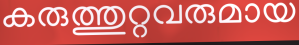
കരുത്തുറ്റവരുമായ